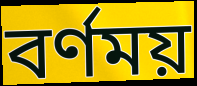
বর্ণময়